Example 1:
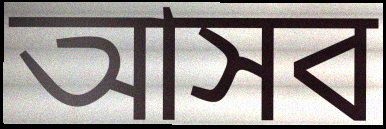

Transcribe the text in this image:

আসব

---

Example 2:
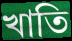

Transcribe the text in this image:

খাতি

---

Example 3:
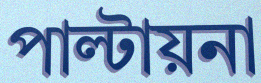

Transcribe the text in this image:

পাল্টায়না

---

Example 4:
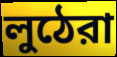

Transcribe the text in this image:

লুঠেরা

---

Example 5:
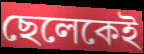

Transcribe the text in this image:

ছেলেকেই